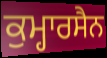
ਕੁਮ੍ਹਾਰਸੈਨ